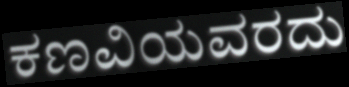
ಕಣವಿಯವರದು